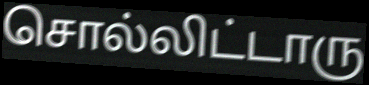
சொல்லிட்டாரு